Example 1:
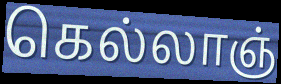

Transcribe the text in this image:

கெல்லாஞ்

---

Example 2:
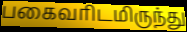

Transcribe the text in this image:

பகைவரிடமிருந்து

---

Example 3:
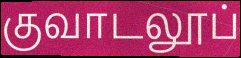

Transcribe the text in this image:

குவாடலூப்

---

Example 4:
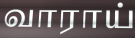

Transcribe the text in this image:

வாராய்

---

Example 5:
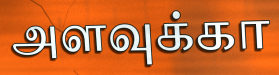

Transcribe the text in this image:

அளவுக்கா